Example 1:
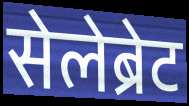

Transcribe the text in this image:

सेलेब्रेट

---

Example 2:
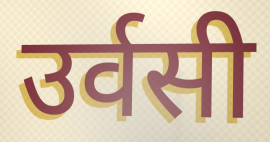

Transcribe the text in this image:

उर्वसी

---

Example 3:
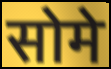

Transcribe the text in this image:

सोमे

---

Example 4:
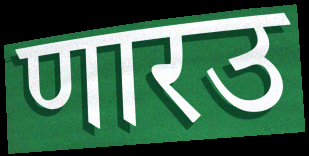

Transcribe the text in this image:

णारउ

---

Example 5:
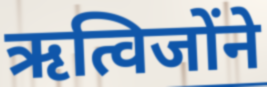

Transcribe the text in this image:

ऋत्विजोंने